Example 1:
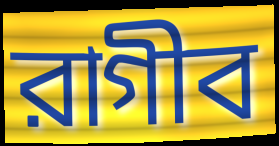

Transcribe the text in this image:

রাগীব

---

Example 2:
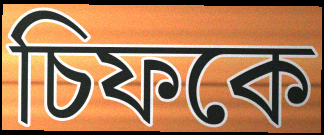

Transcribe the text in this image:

চিফকে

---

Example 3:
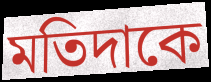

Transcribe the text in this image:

মতিদাকে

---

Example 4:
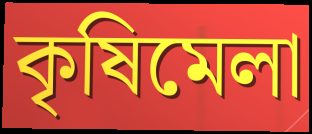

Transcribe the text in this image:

কৃষিমেলা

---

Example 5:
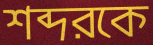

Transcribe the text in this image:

শব্দরকে